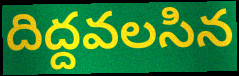
దిద్దవలసిన